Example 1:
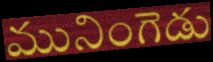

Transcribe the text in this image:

మునింగెడు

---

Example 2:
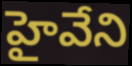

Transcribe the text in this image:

హైవేని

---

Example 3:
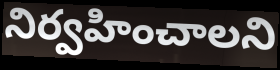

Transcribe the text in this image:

నిర్వహించాలని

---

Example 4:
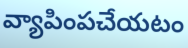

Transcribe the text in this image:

వ్యాపింపచేయటం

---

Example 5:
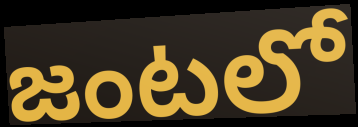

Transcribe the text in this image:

జంటలో